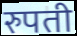
रुपती